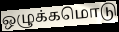
ஒழுக்கமொடு